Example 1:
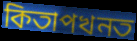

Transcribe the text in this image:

কিতাপখনত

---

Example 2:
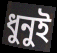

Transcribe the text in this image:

ধুনুই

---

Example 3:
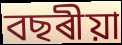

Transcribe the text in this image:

বছৰীয়া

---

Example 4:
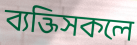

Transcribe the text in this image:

ব্যক্তিসকলে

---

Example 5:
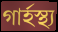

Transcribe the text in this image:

গাৰ্হস্থ্য